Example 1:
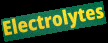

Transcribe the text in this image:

Electrolytes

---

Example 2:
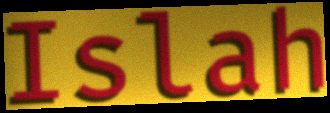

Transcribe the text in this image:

Islah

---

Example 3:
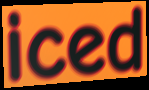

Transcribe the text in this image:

iced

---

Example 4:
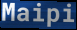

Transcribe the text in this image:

Maipi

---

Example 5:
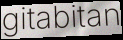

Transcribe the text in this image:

gitabitan